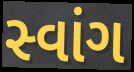
સ્વાંગ